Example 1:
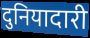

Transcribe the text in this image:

दुनियादारी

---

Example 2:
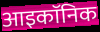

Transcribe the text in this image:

आइकॉनिक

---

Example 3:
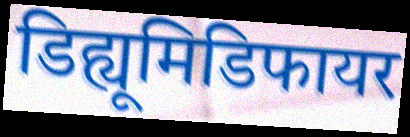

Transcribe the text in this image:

डिह्यूमिडिफायर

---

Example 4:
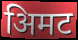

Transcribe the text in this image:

अिमट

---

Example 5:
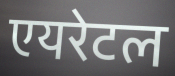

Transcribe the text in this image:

एयरेटल